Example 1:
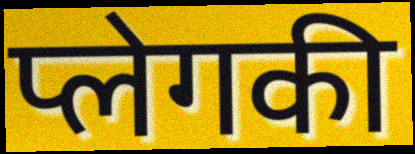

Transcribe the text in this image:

प्लेगकी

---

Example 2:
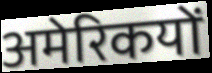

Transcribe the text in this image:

अमेरिकयों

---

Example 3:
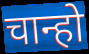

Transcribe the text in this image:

चान्हो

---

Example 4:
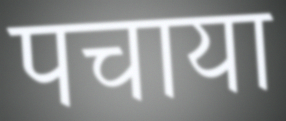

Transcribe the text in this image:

पचाया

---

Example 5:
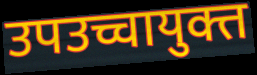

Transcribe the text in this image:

उपउच्चायुक्त